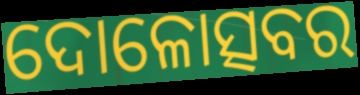
ଦୋଳୋତ୍ସବର